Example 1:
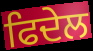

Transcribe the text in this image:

ਫਿਦੇਲ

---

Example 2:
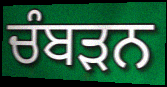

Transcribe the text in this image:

ਚੰਬੜਨ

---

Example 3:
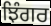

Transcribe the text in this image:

ਝਿੰਗਰ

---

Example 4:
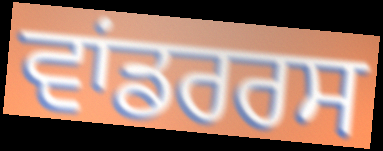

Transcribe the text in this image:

ਵਾਂਡਰਰਸ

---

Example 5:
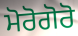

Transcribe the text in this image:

ਮੋਰੋਗੋਰੋ